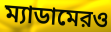
ম্যাডামেরও